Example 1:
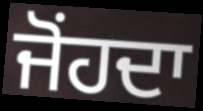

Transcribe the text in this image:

ਜੋਂਹਦਾ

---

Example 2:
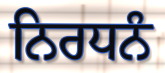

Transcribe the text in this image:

ਨਿਰਧਨੰ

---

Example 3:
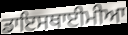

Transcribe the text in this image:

ਡਾਇਸਥਾਈਮੀਆ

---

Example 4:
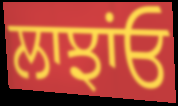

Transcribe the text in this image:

ਲਾਝਾਂਓ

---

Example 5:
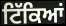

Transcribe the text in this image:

ਟਿੱਕਿਆਂ